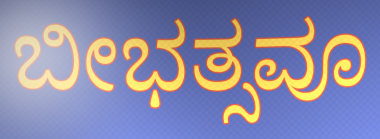
ಬೀಭತ್ಸವೂ